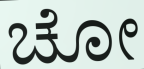
ಚೋ